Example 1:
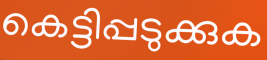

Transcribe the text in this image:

കെട്ടിപ്പടുക്കുക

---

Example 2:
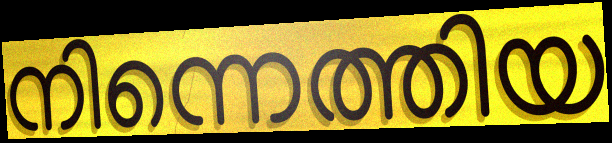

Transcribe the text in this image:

നിന്നെത്തിയ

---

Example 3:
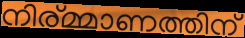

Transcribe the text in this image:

നിര്മ്മാണത്തിന്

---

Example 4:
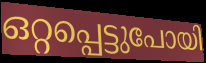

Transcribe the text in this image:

ഒറ്റപ്പെട്ടുപോയി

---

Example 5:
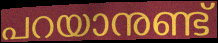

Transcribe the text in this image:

പറയാനുണ്ട്